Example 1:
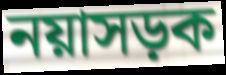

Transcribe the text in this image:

নয়াসড়ক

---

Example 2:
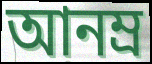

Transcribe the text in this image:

আনম্র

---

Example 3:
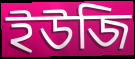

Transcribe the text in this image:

ইউজি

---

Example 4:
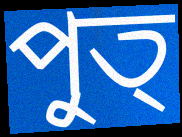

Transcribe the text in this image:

পুত্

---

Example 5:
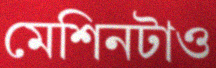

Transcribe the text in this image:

মেশিনটাও